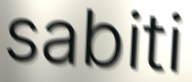
sabiti